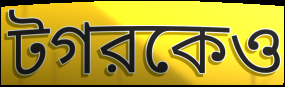
টগরকেও